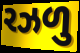
રઝળુ